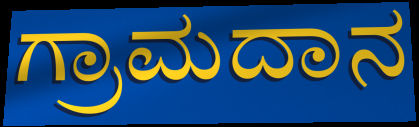
ಗ್ರಾಮದಾನ